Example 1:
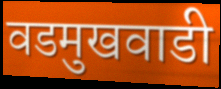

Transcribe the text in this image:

वडमुखवाडी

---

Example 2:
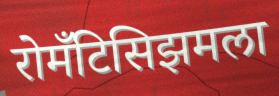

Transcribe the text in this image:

रोमँटिसिझमला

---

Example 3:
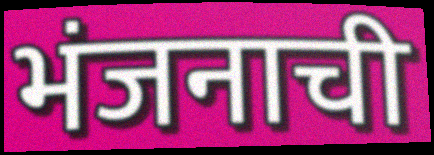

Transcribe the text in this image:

भंजनाची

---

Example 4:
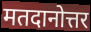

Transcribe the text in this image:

मतदानोत्तर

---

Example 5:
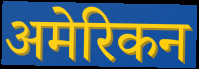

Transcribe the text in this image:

अमेरिकन